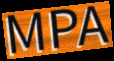
MPA